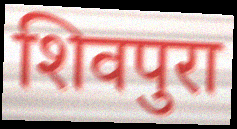
शिवपुरा